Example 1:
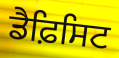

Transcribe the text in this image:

ਡੈਫ਼ਿਸਿਟ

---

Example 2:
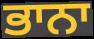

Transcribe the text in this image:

ਭਾਨਾ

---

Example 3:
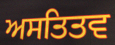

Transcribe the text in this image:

ਅਸਤਿਤਵ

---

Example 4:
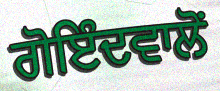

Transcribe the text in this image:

ਗੋਇੰਦਵਾਲੋਂ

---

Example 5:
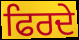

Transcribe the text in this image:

ਫਿਰਦੇ